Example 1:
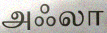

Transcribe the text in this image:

அஃலா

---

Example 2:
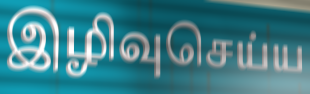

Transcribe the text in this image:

இழிவுசெய்ய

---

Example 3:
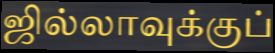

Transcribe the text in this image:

ஜில்லாவுக்குப்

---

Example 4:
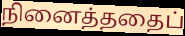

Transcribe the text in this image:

நினைத்ததைப்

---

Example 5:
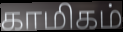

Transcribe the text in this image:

காமிகம்